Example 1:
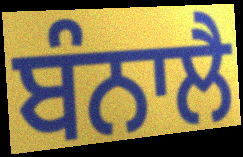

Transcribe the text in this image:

ਬੰਨਾਲੈ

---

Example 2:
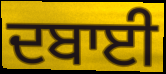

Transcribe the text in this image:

ਦਬਾਈ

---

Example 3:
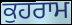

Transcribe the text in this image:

ਕੁਹਰਾਮ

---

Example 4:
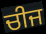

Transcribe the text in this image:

ਚੀਜ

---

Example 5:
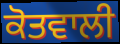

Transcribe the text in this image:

ਕੋਤਵਾਲੀ